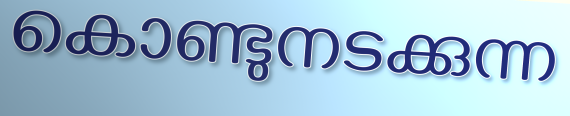
കൊണ്ടുനടക്കുന്ന